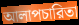
আলাপচারিতা